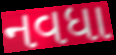
નવધા